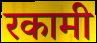
रकामी